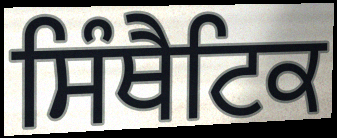
ਸਿੰਥੈਟਿਕ